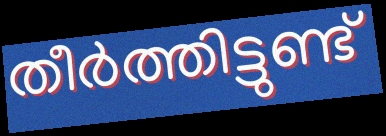
തീർത്തിട്ടുണ്ട്